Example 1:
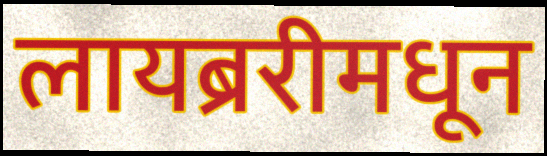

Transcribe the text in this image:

लायब्ररीमधून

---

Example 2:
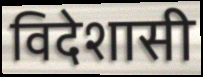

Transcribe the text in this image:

विदेशासी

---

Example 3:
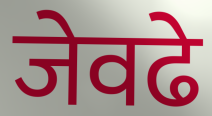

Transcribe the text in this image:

जेवढे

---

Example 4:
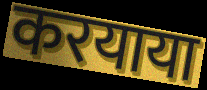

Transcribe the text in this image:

करयाया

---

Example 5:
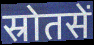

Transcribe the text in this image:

स्रोतसें